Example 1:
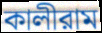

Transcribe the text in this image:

কালীরাম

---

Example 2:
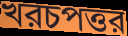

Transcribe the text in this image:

খরচপত্তর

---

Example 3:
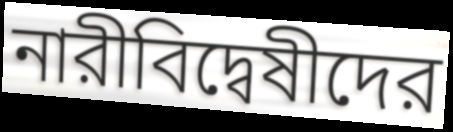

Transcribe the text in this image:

নারীবিদ্বেষীদের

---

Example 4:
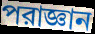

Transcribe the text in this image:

পরাজ্ঞান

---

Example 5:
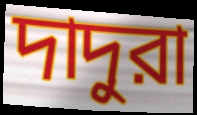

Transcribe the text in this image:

দাদুরা